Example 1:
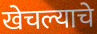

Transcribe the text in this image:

खेचल्याचे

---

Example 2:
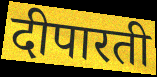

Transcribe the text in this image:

दीपारती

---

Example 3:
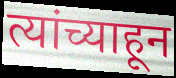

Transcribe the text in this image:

त्यांच्याहून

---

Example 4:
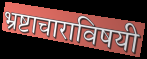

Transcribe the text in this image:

भ्रष्टाचाराविषयी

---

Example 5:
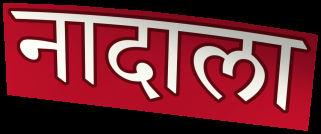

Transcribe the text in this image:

नादाला